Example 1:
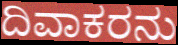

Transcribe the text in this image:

ದಿವಾಕರನು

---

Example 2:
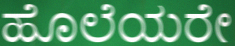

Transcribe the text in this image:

ಹೊಲೆಯರೇ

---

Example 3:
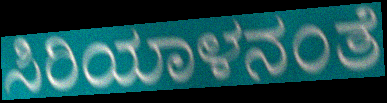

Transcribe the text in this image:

ಸಿರಿಯಾಳನಂತೆ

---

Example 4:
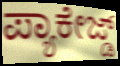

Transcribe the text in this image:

ಪ್ಯಾಕೇಜ್ಡ್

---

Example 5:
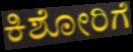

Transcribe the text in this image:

ಕಿಶೋರಿಗೆ